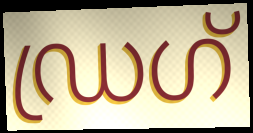
ഡ്രഗ്